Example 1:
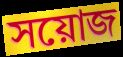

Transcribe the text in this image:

সয়োজ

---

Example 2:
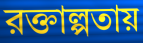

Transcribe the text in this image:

রক্তাল্পতায়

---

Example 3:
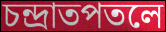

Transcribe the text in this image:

চন্দ্রাতপতলে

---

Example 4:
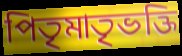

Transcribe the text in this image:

পিতৃমাতৃভক্তি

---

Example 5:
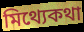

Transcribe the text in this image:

মিথ্যেকথা